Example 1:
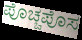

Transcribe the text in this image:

ಪೊಚ್ಚಪೊಸ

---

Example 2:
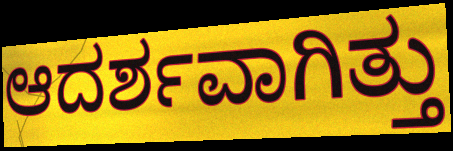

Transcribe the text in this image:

ಆದರ್ಶವಾಗಿತ್ತು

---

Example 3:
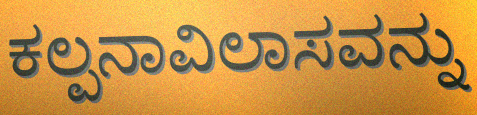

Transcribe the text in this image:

ಕಲ್ಪನಾವಿಲಾಸವನ್ನು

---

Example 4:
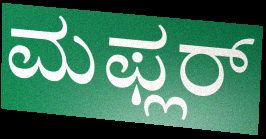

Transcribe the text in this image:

ಮಫ್ಲರ್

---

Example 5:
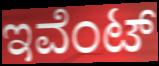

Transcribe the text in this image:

ಇವೆಂಟ್